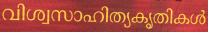
വിശ്വസാഹിത്യകൃതികൾ